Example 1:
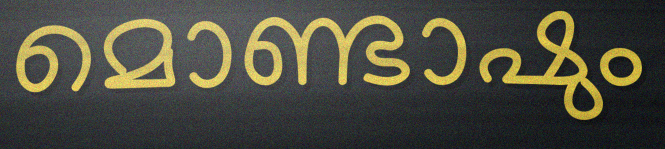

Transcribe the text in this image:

മൊണ്ടാഷും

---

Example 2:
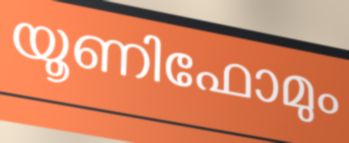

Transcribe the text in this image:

യൂണിഫോമും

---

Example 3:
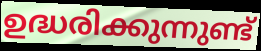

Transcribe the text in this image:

ഉദ്ധരിക്കുന്നുണ്ട്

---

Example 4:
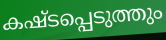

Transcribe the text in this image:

കഷ്ടപ്പെടുത്തും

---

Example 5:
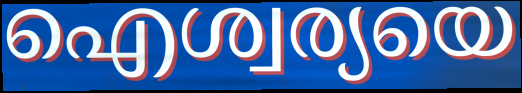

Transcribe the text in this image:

ഐശ്വര്യയെ